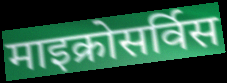
माइक्रोसर्विस